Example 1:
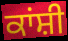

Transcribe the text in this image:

ਕਾਂਸ਼ੀ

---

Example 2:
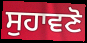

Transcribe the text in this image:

ਸੁਹਾਵਣੋ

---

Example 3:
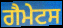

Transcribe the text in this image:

ਗੈਮੇਟਸ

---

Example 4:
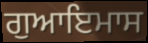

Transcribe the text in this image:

ਗੁਆਇਮਾਸ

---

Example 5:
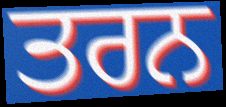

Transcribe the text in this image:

ਤਰਨ